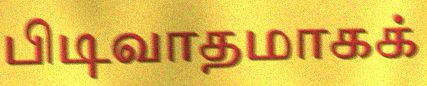
பிடிவாதமாகக்